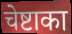
चेष्टाका